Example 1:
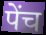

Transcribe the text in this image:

पेंच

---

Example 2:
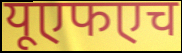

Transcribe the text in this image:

यूएफएच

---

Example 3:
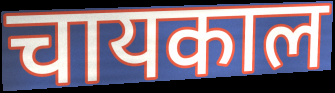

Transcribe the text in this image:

चायकाल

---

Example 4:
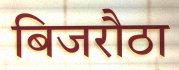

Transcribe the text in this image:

बिजरौठा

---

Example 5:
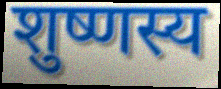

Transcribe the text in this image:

शुष्णस्य